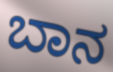
ಬಾನ